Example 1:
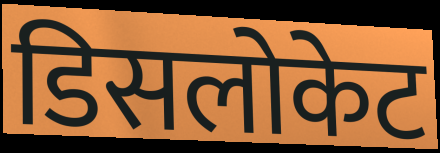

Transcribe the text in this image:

डिसलोकेट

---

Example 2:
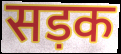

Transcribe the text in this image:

सड़क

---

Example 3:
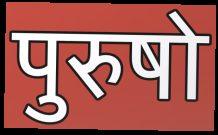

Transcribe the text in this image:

पुरुषो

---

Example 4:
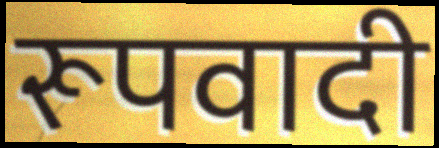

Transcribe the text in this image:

रूपवादी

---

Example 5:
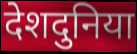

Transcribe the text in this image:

देशदुनिया